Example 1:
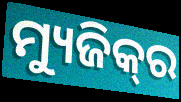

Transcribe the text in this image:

ମ୍ୟୁଜିକ୍‌ର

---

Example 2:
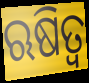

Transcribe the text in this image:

ଋଷିତ୍ୱ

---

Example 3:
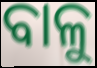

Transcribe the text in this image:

ବାଳୁ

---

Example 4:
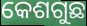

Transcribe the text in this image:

କେଶଗୁଛ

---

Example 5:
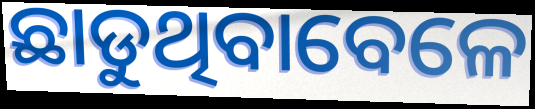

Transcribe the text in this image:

ଛାଡୁଥିବାବେଳେ